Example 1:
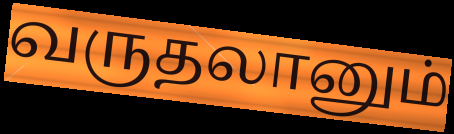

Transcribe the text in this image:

வருதலானும்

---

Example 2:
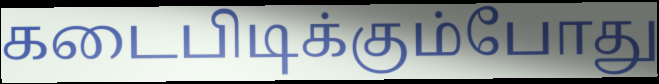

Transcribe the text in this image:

கடைபிடிக்கும்போது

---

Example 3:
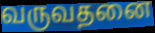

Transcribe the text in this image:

வருவதனை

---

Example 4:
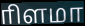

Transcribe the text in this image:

ரிளமா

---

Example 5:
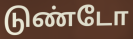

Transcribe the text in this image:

டுண்டோ